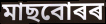
মাছবোৰৰ